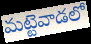
మట్టెవాడలో